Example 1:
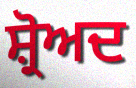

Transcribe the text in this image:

ਸ਼੍ਰੋਅਦ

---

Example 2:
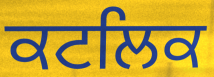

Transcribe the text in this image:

ਕਟਲਿਕ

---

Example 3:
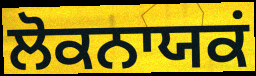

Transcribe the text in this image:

ਲੋਕਨਾਯਕਂ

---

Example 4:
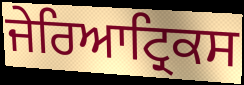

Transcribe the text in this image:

ਜੇਰਿਆਟ੍ਰਿਕਸ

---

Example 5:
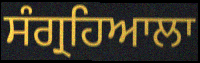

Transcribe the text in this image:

ਸੰਗ੍ਰਹਿਆਲਾ